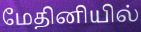
மேதினியில்